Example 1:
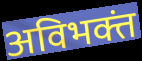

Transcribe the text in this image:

अविभक्तं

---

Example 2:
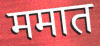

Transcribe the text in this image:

ममात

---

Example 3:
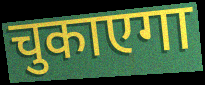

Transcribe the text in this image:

चुकाएगा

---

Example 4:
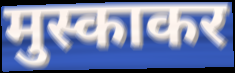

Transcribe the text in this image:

मुस्काकर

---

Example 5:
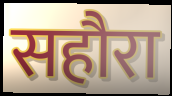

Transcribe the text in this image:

सहौरा